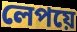
লেপয়ে